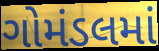
ગોમંડલમાં